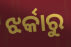
ଝର୍କାରୁ